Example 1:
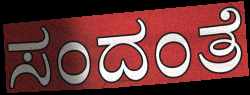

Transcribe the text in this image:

ಸಂದಂತೆ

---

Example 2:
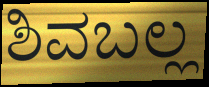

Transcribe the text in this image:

ಶಿವಬಲ್ಲ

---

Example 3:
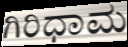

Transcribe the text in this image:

ಗಿರಿಧಾಮ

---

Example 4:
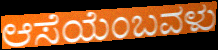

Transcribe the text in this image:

ಆಸೆಯೆಂಬವಳು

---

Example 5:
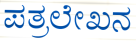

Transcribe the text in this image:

ಪತ್ರಲೇಖನ